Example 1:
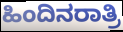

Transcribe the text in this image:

ಹಿಂದಿನರಾತ್ರಿ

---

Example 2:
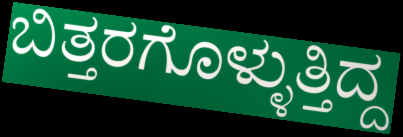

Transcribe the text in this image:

ಬಿತ್ತರಗೊಳ್ಳುತ್ತಿದ್ದ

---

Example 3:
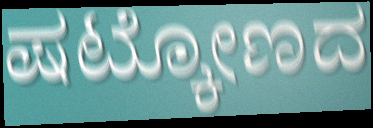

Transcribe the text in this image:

ಷಟ್ಕೋಣದ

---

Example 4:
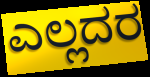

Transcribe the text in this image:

ಎಲ್ಲದರ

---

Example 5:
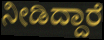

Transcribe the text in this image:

ನೀಡಿದ್ದಾರೆ